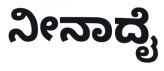
ನೀನಾದೈ